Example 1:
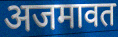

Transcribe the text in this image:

अजमावत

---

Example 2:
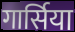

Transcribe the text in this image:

गार्सिया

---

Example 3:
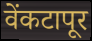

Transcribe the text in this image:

वेंकटापूर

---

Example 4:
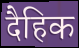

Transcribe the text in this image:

दैहिक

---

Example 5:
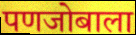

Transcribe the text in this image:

पणजोबाला